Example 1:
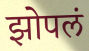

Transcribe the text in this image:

झोपलं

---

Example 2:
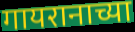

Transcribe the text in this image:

गायरानाच्या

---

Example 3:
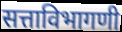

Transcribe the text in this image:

सत्ताविभागणी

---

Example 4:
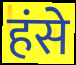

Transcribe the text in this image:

हंसे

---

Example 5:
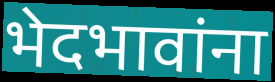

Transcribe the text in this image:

भेदभावांना